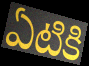
ఏటికి